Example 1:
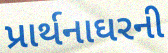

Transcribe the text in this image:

પ્રાર્થનાઘરની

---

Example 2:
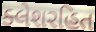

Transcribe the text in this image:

ક્લેશરહિત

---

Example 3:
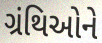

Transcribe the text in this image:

ગ્રંથિઓને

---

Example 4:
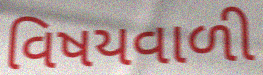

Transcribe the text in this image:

વિષયવાળી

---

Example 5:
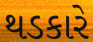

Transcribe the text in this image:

થડકારે